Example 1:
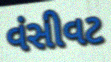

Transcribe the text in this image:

વંસીવટ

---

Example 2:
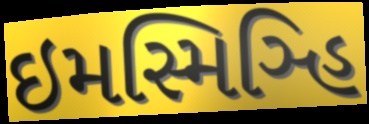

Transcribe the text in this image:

ઇમસ્મિઞ્હિ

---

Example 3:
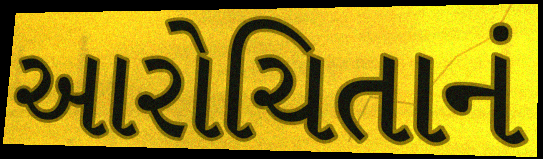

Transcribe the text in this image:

આરોચિતાનં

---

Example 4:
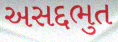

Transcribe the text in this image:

અસદ્દભુત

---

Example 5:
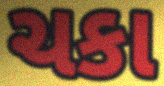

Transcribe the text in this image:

ચકા